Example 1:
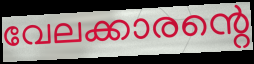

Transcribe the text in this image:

വേലക്കാരന്റെ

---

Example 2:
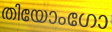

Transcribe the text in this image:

തിയോംഗോ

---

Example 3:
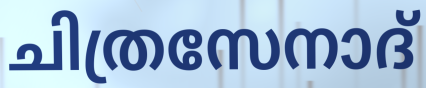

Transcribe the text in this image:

ചിത്രസേനാദ്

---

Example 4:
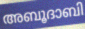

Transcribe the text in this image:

അബൂദാബി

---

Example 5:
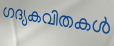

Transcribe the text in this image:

ഗദ്യകവിതകൾ